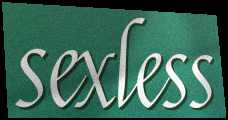
sexless